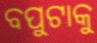
ବପୁଟାକୁ